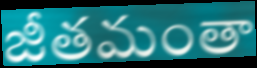
జీతమంతా